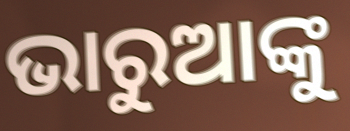
ଭାରୁଆଙ୍କୁ